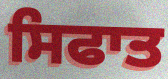
ਸਿਫਾਤ